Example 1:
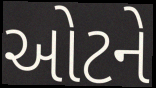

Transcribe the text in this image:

ઓટને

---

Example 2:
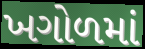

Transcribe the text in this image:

ખગોળમાં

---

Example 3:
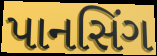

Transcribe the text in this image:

પાનસિંગ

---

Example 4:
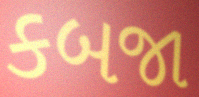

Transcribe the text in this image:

કબજા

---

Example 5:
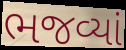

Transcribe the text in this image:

ભજવ્યાં